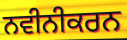
ਨਵੀਨੀਕਰਨ